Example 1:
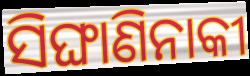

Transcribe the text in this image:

ସିଙ୍ଘାଣିନାକୀ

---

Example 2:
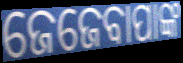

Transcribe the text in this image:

ଜେଜେବାପାଙ୍କ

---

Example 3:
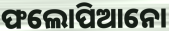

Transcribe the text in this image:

ଫଲୋପିଆନୋ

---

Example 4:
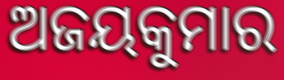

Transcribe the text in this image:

ଅଜୟକୁମାର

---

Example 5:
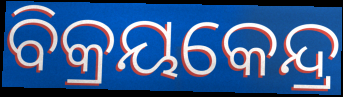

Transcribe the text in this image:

ବିକ୍ରୟକେନ୍ଦ୍ର